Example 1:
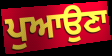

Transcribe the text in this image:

ਪੁਆਉਣਾ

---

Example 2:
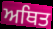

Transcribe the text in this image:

ਅਥਿਤ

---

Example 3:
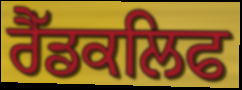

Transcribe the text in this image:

ਰੈੱਡਕਲਿਫ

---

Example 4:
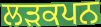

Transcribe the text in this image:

ਲੜਕਪਨ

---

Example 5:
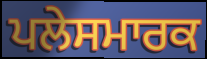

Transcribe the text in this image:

ਪਲੇਸਮਾਰਕ